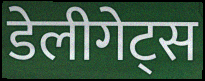
डेलीगेट्स